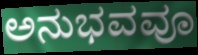
ಅನುಭವವೂ